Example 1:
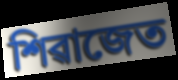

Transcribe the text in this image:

শিৱাজেত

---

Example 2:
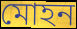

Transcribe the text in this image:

মোহন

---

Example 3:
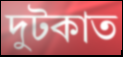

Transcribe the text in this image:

দুটকাত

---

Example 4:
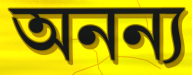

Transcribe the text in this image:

অনন্য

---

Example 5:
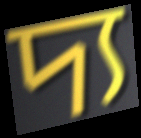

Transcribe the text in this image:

দ্য